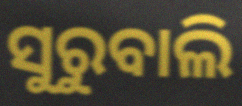
ସୁରୁବାଲି